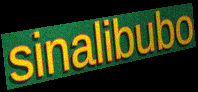
sinalibubo